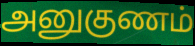
அனுகுணம்